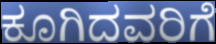
ಕೂಗಿದವರಿಗೆ